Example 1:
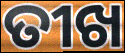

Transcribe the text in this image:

ତୀଖ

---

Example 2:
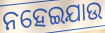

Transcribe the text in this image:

ନହେଇଯାଉ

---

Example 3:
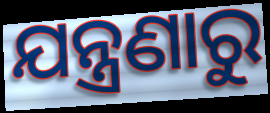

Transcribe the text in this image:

ଯନ୍ତ୍ରଣାରୁ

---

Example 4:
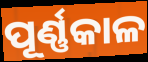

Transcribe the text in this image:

ପୂର୍ଣ୍ଣକାଳ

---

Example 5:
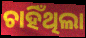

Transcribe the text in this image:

ଚାହିଁଥିଲା